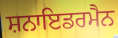
ਸ਼ਨਾਇਡਰਮੈਨ